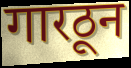
गारठून